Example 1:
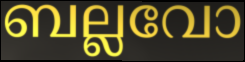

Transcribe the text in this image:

ബല്ലവോ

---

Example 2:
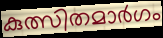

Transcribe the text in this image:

കുത്സിതമാർഗം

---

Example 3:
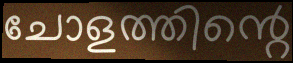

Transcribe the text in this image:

ചോളത്തിന്റെ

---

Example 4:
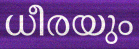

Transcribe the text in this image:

ധീരയും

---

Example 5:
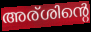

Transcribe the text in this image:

അര്ശിന്റെ